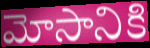
మోసానికి